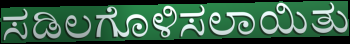
ಸಡಿಲಗೊಳಿಸಲಾಯಿತು